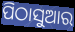
ପିଠାସୁଆର